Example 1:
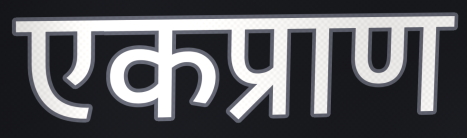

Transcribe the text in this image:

एकप्राण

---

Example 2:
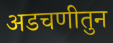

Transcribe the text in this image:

अडचणीतुन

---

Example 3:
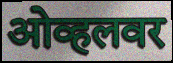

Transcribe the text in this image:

ओव्हलवर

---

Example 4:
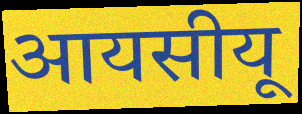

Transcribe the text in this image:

आयसीयू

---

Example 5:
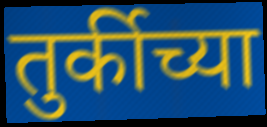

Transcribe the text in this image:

तुर्कीच्या